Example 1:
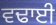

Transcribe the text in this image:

ਵਢਾਈ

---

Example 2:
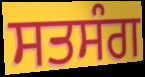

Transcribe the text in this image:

ਸਤਸੰਗ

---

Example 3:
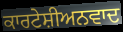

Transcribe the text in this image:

ਕਾਰਟੇਸ਼ੀਅਨਵਾਦ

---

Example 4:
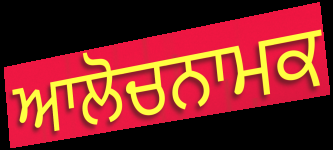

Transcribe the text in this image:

ਆਲੋਚਨਾਮਕ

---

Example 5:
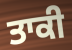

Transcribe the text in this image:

ਤਾਕੀ